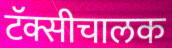
टॅक्सीचालक